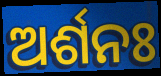
ଅର୍ଶନଃ